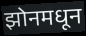
झोनमधून